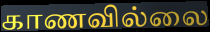
காணவில்லை